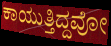
ಕಾಯುತ್ತಿದ್ದವೋ